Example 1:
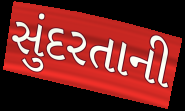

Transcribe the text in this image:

સુંદરતાની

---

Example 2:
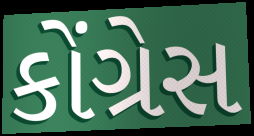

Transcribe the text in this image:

કોંગ્રેસ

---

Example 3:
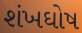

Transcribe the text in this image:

શંખઘોષ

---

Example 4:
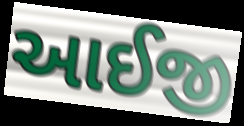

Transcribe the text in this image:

આઈજી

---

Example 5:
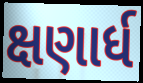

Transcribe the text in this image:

ક્ષણાર્ધ